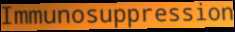
Immunosuppression